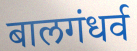
बालगंधर्व